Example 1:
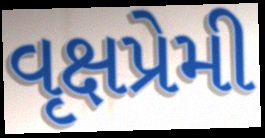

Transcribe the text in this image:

વૃક્ષપ્રેમી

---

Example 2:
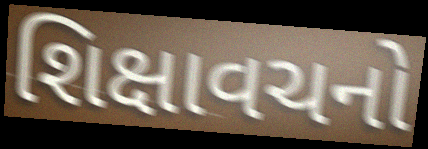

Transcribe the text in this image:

શિક્ષાવચનો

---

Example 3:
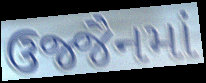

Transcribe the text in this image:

ઉજ્જૈનમાં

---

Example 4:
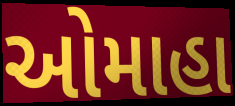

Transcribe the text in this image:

ઓમાહા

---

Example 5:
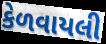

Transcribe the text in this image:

કેળવાયલી